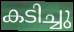
കടിച്ചു